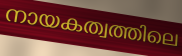
നായകത്വത്തിലെ